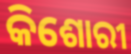
କିଶୋରୀ